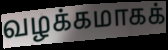
வழக்கமாகக்